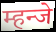
म्हन्जे